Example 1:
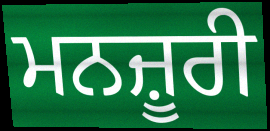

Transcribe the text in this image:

ਮਨਜ਼ੂਰੀ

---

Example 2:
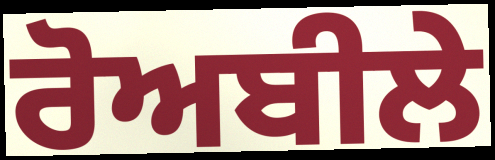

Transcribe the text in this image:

ਰੋਅਬੀਲੇ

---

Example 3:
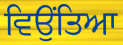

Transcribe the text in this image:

ਵਿਉਂਤਿਆ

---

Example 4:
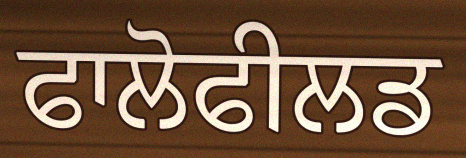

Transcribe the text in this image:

ਫਾਲੋਫੀਲਡ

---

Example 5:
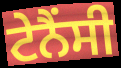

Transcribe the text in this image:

ਟੇਨੈਂਸੀ